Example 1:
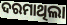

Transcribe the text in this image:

ଦରମାଥିଲା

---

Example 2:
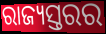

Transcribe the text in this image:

ରାଜ୍ୟସ୍ତରର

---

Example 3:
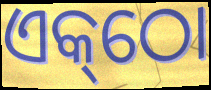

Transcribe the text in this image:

ଏକ୍‌ଠୋ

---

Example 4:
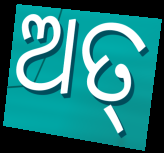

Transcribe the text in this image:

ଅତ୍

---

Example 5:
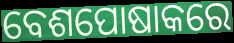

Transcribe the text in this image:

ବେଶପୋଷାକରେ